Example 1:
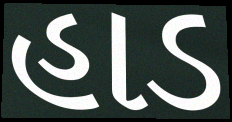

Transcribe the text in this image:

હાડ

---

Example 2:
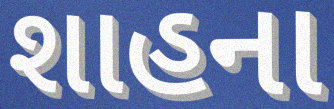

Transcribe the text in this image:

શાહના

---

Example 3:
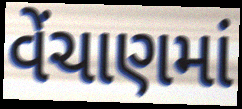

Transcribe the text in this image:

વેંચાણમાં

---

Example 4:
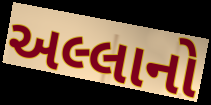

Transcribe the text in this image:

અલ્લાનો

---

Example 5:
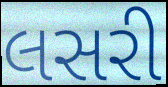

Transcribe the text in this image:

લસરી